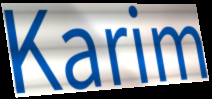
Karim